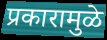
प्रकारामुळे